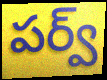
పర్వ్